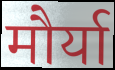
मौर्या